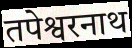
तपेश्वरनाथ